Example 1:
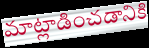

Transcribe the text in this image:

మాట్లాడించడానికి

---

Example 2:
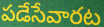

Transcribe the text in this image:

పడేసేవారట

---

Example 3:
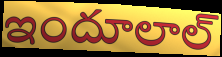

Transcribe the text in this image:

ఇందూలాల్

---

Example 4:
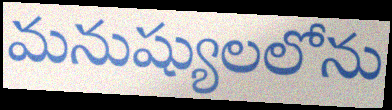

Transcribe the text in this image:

మనుష్యులలోను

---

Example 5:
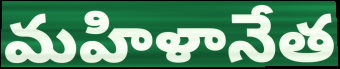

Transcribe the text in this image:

మహిళానేత